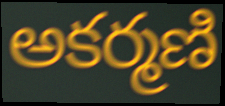
అకర్మణి